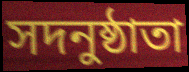
সদনুষ্ঠাতা